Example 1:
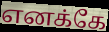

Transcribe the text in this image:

எனக்கே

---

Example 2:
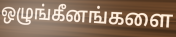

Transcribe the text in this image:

ஒழுங்கீனங்களை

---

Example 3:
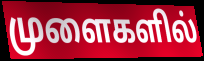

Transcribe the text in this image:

முளைகளில்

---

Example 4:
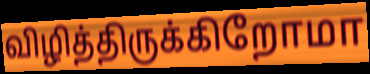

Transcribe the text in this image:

விழித்திருக்கிறோமா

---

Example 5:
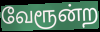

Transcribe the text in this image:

வேரூன்ற